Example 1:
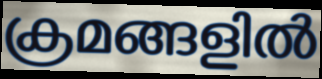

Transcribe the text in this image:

ക്രമങ്ങളിൽ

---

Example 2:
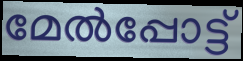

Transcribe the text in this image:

മേൽപ്പോട്ട്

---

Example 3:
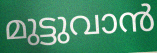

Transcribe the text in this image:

മുട്ടുവാൻ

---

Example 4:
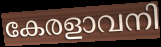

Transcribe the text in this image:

കേരളാവനി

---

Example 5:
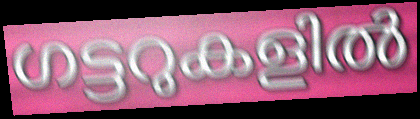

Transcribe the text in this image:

ഗട്ടറുകളിൽ